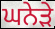
ਘਨੇੜੇ